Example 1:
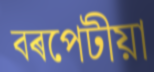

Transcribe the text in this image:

বৰপেটীয়া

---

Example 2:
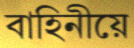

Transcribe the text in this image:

বাহিনীয়ে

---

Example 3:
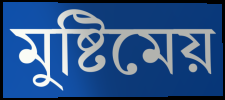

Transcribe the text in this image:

মুষ্টিমেয়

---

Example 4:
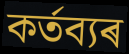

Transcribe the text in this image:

কৰ্তব্যৰ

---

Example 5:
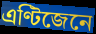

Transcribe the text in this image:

এণ্টিজেনে